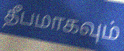
தீபமாகவும்